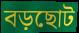
বড়ছোট